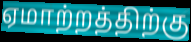
ஏமாற்றத்திற்கு